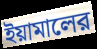
ইয়ামালের